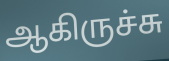
ஆகிருச்சு